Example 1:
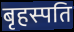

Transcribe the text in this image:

बृहस्पति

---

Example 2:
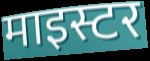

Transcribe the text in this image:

माइस्टर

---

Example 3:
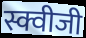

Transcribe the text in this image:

स्क्वीजी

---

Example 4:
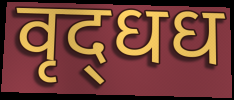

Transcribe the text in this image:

वृद्धध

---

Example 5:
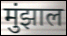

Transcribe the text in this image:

मुंझाल